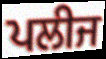
ਪਲੀਜ